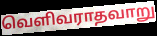
வெளிவராதவாறு